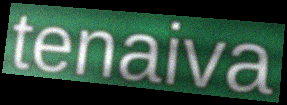
tenaiva